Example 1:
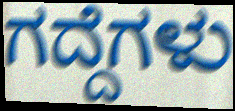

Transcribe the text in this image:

ಗದ್ದೆಗಳು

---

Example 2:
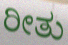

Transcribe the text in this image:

ರೀತು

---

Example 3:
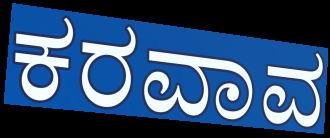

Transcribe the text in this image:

ಕರವಾವ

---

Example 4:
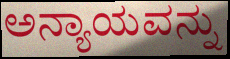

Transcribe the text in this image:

ಅನ್ಯಾಯವನ್ನು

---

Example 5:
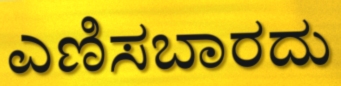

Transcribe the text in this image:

ಎಣಿಸಬಾರದು